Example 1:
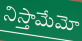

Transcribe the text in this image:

నిస్తామేమో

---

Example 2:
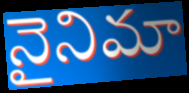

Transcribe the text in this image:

నైనిమా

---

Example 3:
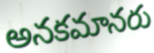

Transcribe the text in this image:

అనకమానరు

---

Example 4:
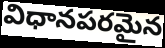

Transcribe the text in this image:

విధానపరమైన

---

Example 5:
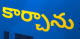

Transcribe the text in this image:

కార్చాను